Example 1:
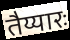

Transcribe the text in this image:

तैय्यारः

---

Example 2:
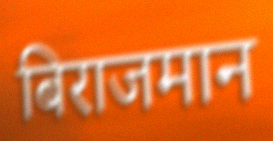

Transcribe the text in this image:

बिराजमान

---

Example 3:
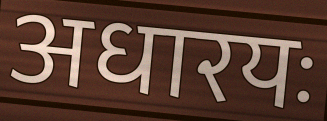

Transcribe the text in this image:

अधारयः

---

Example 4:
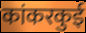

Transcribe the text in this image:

कांकरकुई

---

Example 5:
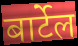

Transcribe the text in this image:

बार्टेल